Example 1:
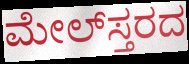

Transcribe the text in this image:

ಮೇಲ್‌ಸ್ತರದ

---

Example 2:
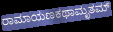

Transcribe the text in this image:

ರಾಮಾಯಣಕಥಾಮೃತಮ್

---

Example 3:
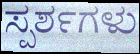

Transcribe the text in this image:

ಸ್ಪರ್ಶಗಳು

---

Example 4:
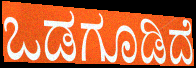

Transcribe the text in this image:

ಒಡಗೂಡಿದೆ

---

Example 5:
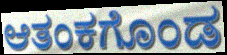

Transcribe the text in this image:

ಆತಂಕಗೊಂಡ